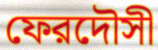
ফেরদৌসী